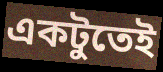
একটুতেই